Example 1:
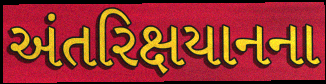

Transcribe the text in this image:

અંતરિક્ષયાનના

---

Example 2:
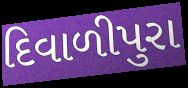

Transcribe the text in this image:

દિવાળીપુરા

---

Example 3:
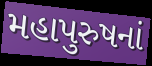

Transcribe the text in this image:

મહાપુરુષનાં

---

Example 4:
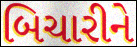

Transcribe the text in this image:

બિચારીને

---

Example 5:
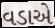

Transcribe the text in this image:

વડાએ